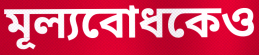
মূল্যবোধকেও